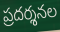
ప్రదర్శనల